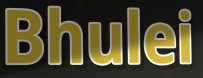
Bhulei